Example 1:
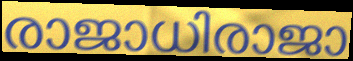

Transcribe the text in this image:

രാജാധിരാജാ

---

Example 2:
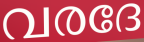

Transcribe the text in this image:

വരദേ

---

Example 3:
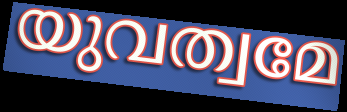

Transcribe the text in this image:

യുവത്വമേ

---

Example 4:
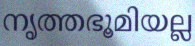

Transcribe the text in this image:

നൃത്തഭൂമിയല്ല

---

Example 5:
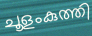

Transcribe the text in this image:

ചൂളംകുത്തി